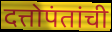
दत्तोपंतांची